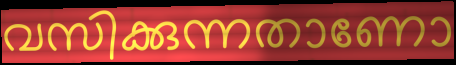
വസിക്കുന്നതാണോ